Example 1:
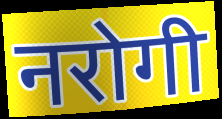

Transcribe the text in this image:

नरोगी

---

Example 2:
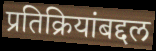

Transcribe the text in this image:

प्रतिक्रियांबद्दल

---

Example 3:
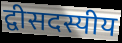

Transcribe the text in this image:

द्वीसदस्यीय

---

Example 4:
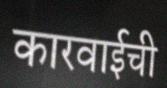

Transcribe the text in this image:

कारवाईची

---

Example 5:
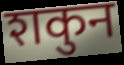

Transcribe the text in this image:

शकुन